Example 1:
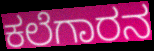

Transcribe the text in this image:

ಕಲೆಗಾರನ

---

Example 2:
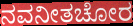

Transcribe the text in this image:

ನವನೀತಚೋರ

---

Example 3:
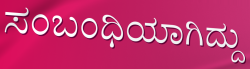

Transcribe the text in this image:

ಸಂಬಂಧಿಯಾಗಿದ್ದು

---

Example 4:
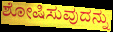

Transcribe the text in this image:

ಶೋಷಿಸುವುದನ್ನು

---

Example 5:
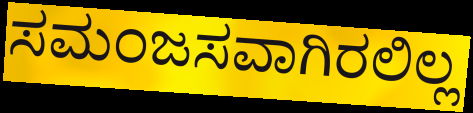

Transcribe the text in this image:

ಸಮಂಜಸವಾಗಿರಲಿಲ್ಲ